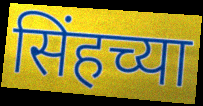
सिंहच्या